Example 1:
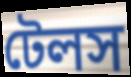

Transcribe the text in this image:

টেলস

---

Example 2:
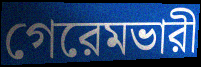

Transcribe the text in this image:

গেরেমভারী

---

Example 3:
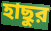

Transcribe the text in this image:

হাছুর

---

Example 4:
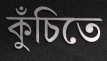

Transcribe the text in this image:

কুঁচিতে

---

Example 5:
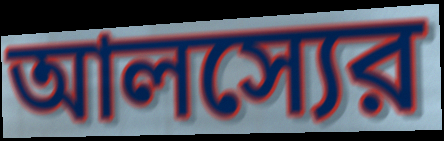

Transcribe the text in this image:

আলস্যের